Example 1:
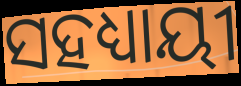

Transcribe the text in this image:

ସହଧ୍ୟାୟୀ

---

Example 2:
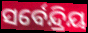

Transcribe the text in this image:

ସର୍ବେନ୍ଦ୍ରିୟ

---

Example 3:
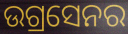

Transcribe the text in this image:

ଉଗ୍ରସେନର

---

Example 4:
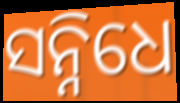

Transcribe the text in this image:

ସନ୍ନିଧେ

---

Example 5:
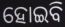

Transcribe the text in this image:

ହୋଇବି